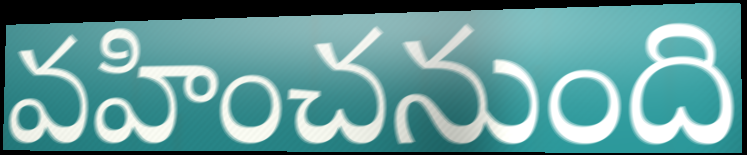
వహించనుంది